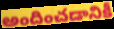
అందించడానికీ